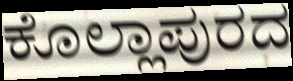
ಕೊಲ್ಲಾಪುರದ